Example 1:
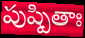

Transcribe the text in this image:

పుష్పితాః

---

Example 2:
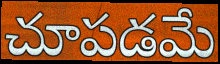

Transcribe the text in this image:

చూపడమే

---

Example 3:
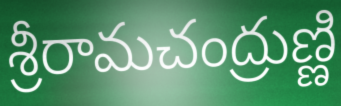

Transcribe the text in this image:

శ్రీరామచంద్రుణ్ణి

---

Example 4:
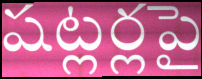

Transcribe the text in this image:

షట్లర్లపై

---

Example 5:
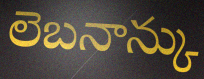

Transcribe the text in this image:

లెబనాన్కు